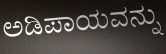
ಅಡಿಪಾಯವನ್ನು